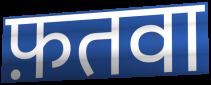
फ़तवा